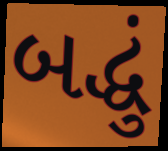
બદ્ધું